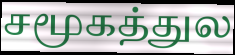
சமூகத்துல